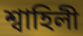
শ্বাহিলী